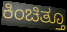
ಕಿಂಚಿತ್ತೂ